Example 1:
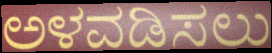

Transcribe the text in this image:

ಅಳವಡಿಸಲು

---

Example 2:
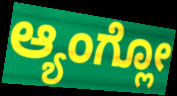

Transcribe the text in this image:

ಆ್ಯಂಗ್ಲೋ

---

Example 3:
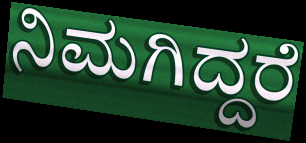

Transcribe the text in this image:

ನಿಮಗಿದ್ದರೆ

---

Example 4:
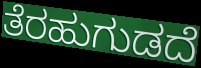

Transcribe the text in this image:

ತೆರಹುಗುಡದೆ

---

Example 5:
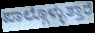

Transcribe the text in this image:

ಪಾಲ್ಗೊಳ್ಳುತ್ತಾರೆ